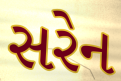
સરેન